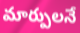
మార్పులనే